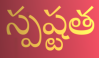
స్పష్టత